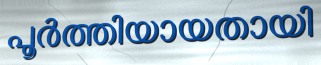
പൂർത്തിയായതായി